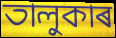
তালুকাৰ